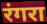
रंगरा